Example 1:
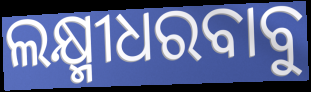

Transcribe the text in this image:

ଲକ୍ଷ୍ମୀଧରବାବୁ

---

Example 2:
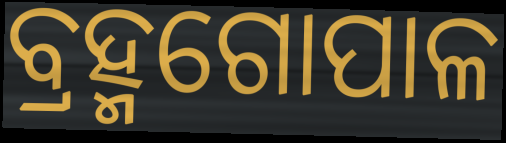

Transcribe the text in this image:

ବ୍ରହ୍ମଗୋପାଳ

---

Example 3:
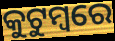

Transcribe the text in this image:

କୁଟୁମ୍ଵରେ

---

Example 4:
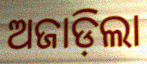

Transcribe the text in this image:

ଅଜାଡ଼ିଲା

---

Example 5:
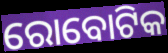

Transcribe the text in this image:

ରୋବୋଟିକ